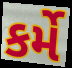
કર્મે